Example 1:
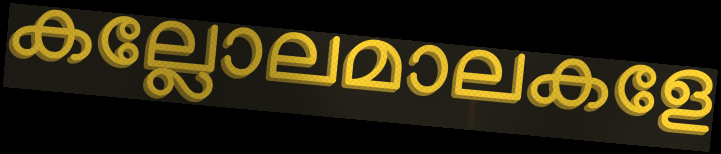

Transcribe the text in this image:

കല്ലോലമാലകളേ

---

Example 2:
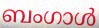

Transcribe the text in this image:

ബംഗാൾ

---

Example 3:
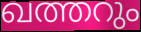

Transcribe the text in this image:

ഖത്തറും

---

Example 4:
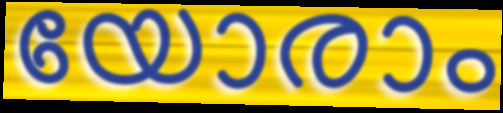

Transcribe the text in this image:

യോരാം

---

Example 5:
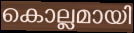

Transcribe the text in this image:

കൊല്ലമായി